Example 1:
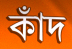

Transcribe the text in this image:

কাঁদ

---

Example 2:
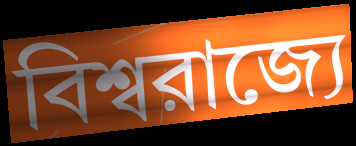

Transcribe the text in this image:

বিশ্বরাজ্যে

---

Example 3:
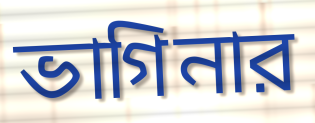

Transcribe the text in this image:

ভাগিনার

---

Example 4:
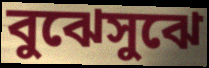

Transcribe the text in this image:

বুঝেসুঝে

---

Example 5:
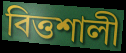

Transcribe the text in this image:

বিত্তশালী